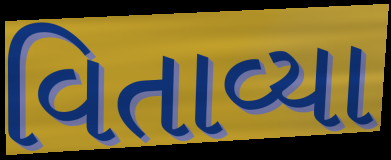
વિતાવ્યા